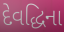
દેવદ્ધિના